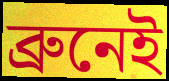
ব্ৰুনেই